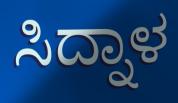
ಸಿದ್ನಾಳ